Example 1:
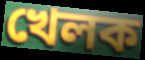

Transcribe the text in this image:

খেলক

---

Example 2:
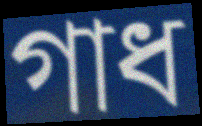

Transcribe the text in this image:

গাধ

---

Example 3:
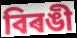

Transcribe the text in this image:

বিৰঙী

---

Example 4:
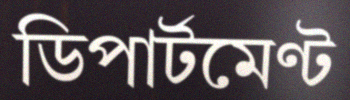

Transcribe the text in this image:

ডিপাৰ্টমেণ্ট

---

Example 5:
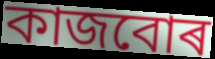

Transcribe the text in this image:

কাজবোৰ